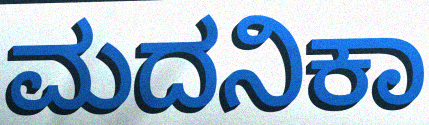
ಮದನಿಕಾ